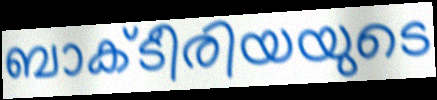
ബാക്ടീരിയയുടെ